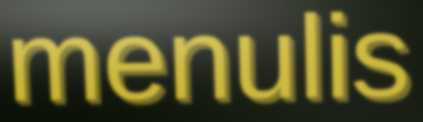
menulis